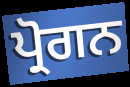
ਪ੍ਰੋਗਨ